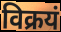
विक्रयं